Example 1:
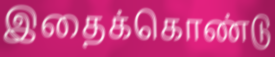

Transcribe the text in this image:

இதைக்கொண்டு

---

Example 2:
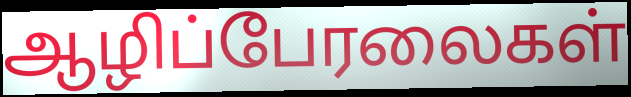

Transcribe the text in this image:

ஆழிப்பேரலைகள்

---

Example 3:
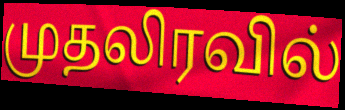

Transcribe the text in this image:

முதலிரவில்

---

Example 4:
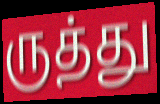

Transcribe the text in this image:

ருத்து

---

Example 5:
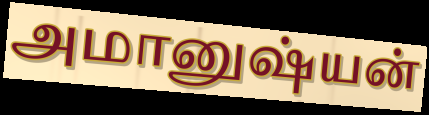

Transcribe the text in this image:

அமானுஷ்யன்